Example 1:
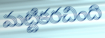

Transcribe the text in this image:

మట్టికరచింది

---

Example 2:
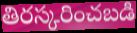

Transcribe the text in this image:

తిరస్కరించబడి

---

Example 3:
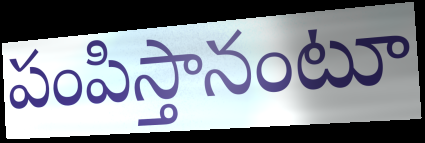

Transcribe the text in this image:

పంపిస్తానంటూ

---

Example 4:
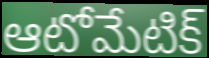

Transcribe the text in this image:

ఆటోమేటిక్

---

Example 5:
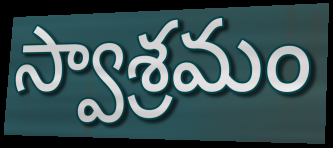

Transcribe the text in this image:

స్వాశ్రమం